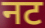
नट